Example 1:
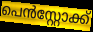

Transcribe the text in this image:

പെൻസ്റ്റോക്ക്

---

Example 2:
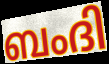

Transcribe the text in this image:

ബംദി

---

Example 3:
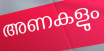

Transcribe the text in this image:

അണകളും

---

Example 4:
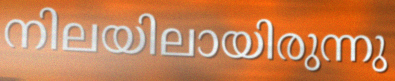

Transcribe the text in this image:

നിലയിലായിരുന്നു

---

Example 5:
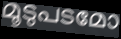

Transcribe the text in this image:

മൂടുപടമോ